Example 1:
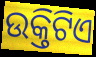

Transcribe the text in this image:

ଉକ୍ତିଟିଏ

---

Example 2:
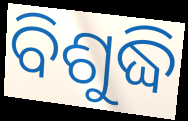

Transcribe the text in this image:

ବିଶୁଦ୍ଧି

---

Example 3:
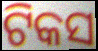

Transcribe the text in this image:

ଟିକସ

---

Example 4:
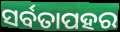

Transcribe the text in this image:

ସର୍ବତାପହର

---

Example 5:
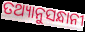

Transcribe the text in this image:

ତଥ୍ୟାନୁସନ୍ଧାନୀ